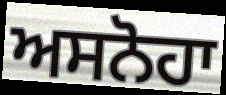
ਅਸਨੋਹਾ